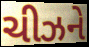
ચીઝને